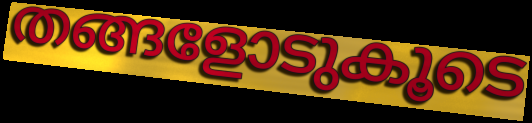
തങ്ങളോടുകൂടെ